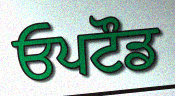
ਓਪਟੌਡ